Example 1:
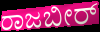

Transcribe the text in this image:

ರಾಜಬೀರ್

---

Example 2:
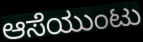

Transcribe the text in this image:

ಆಸೆಯುಂಟು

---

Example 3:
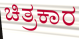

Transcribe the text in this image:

ಚಿತ್ರಕಾರ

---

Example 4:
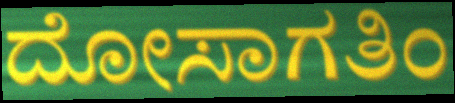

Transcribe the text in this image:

ದೋಸಾಗತಿಂ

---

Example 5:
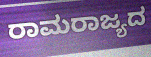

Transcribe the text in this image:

ರಾಮರಾಜ್ಯದ